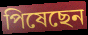
পিষেছেন